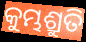
କୁମ୍ଭଶ୍ରୁତି